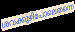
ശവക്കുഴിപോലെതന്നെ